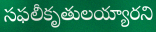
సఫలీకృతులయ్యారని